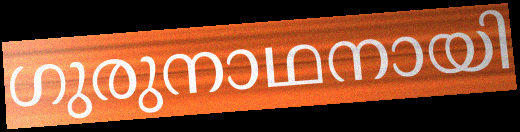
ഗുരുനാഥനായി